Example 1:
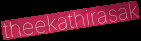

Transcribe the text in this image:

theekathirasak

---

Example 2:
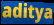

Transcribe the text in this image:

aditya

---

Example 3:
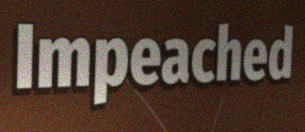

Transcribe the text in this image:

Impeached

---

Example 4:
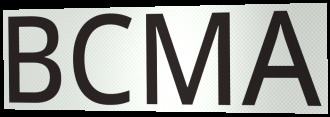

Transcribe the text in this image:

BCMA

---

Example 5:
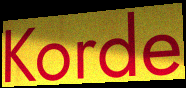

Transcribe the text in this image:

Korde